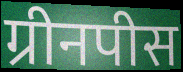
ग्रीनपीस